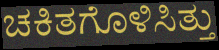
ಚಕಿತಗೊಳಿಸಿತ್ತು